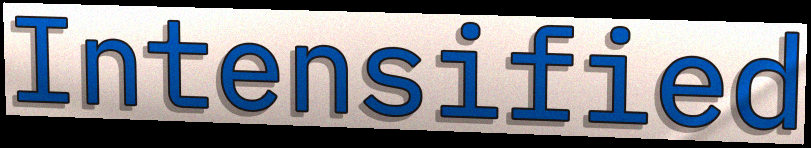
Intensified